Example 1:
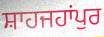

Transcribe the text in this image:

ਸ਼ਾਹਜਹਾਂਪੁਰ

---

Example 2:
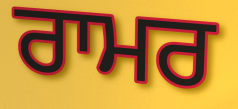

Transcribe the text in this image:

ਰਾਮਰ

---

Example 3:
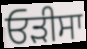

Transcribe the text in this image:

ਓੜੀਸਾ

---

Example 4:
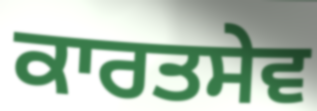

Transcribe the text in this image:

ਕਾਰਤਸੇਵ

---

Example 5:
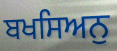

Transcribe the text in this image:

ਬਖਸਿਅਨੁ